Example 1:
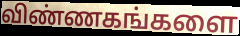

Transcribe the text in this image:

விண்ணகங்களை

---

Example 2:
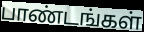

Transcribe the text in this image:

பாண்டங்கள்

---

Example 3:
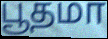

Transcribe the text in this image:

பூதமா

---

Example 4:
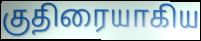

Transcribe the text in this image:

குதிரையாகிய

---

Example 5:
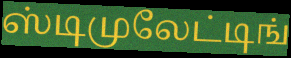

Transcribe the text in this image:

ஸ்டிமுலேட்டிங்